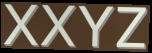
XXYZ